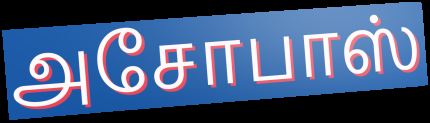
அசோபாஸ்